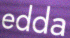
edda